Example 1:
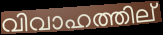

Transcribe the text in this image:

വിവാഹത്തില്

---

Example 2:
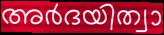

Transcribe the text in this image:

അർദയിത്വാ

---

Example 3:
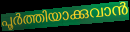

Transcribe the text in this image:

പൂർത്തിയാക്കുവാൻ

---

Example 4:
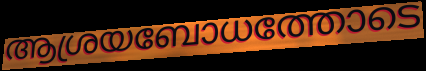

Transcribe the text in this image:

ആശ്രയബോധത്തോടെ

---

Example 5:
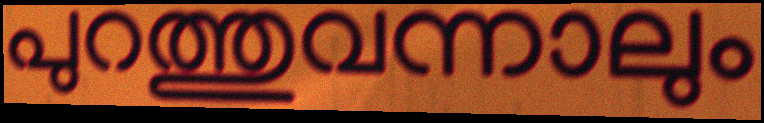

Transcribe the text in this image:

പുറത്തുവന്നാലും